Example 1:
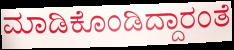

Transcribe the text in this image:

ಮಾಡಿಕೊಂಡಿದ್ದಾರಂತೆ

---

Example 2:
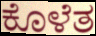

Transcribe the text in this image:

ಕೊಳೆತ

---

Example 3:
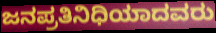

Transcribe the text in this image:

ಜನಪ್ರತಿನಿಧಿಯಾದವರು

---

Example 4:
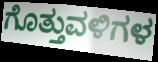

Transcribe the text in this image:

ಗೊತ್ತುವಳಿಗಳ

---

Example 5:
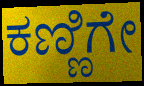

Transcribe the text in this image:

ಕಣ್ಣಿಗೇ